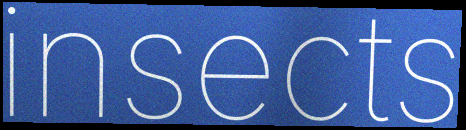
insects